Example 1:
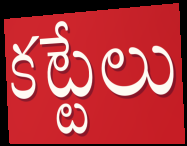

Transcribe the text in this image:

కట్టేలు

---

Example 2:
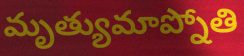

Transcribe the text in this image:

మృత్యుమాప్నోతి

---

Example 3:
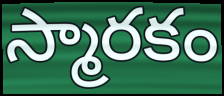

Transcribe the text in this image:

స్మారకం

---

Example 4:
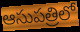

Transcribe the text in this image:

ఆసుపత్రిలో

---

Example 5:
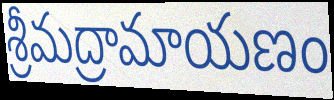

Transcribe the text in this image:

శ్రీమద్రామాయణం